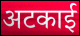
अटकाई